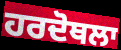
ਹਰਦੋਥਲਾ